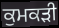
ਕੁਮਕੜੀ